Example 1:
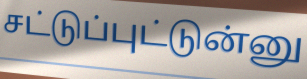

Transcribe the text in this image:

சட்டுப்புட்டுன்னு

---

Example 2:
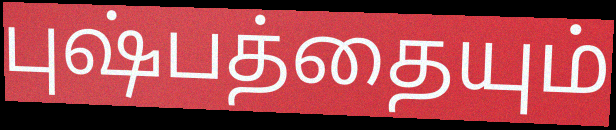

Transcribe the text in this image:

புஷ்பத்தையும்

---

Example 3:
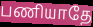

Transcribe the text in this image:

பணியாதே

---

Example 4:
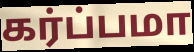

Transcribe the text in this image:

கர்ப்பமா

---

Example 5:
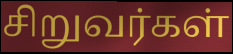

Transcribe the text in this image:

சிறுவர்கள்